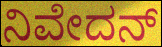
ನಿವೇದನ್